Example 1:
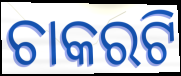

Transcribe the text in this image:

ଚାକରଟି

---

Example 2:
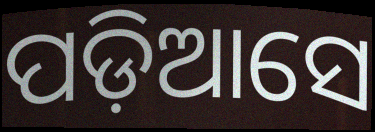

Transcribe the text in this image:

ପଡ଼ିଆସେ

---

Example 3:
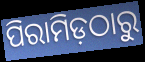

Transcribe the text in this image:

ପିରାମିଡ଼ଠାରୁ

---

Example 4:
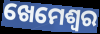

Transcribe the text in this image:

ଖେମେଶ୍ଵର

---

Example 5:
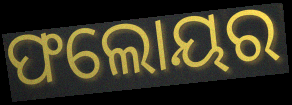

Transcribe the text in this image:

ଫଲୋୟର